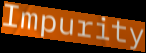
Impurity